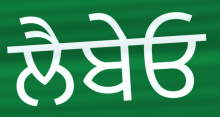
ਲੈਬੇਓ